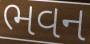
ભવન